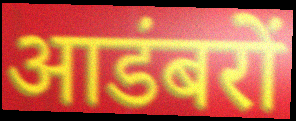
आडंबरों